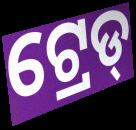
ଟ୍ରେଡ୍